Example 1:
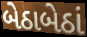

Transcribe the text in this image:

બેઠાબેઠાં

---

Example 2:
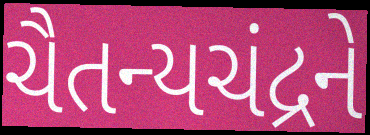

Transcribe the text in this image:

ચૈતન્યચંદ્રને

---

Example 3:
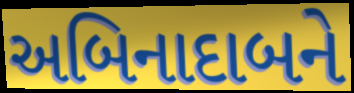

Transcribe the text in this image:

અબિનાદાબને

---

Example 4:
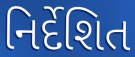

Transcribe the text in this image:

નિર્દેશિત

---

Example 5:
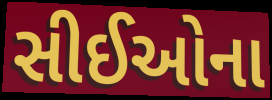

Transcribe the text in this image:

સીઈઓના